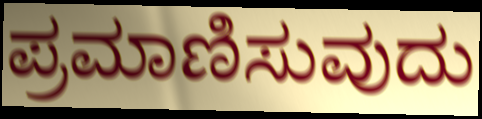
ಪ್ರಮಾಣಿಸುವುದು